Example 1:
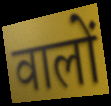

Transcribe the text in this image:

वालों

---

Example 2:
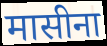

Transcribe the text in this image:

मासीना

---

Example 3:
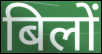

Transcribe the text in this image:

बिलों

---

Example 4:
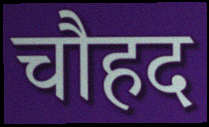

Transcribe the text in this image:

चौहद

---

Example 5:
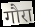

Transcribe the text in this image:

गौरा